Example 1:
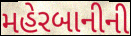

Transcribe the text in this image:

મહેરબાનીની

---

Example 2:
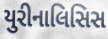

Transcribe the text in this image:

યુરીનાલિસિસ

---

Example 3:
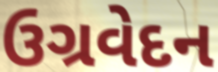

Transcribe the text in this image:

ઉગ્રવેદન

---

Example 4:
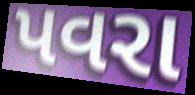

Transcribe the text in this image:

પવરા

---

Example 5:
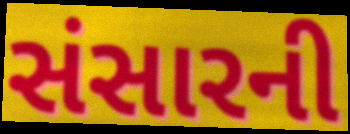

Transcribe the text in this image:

સંસારની